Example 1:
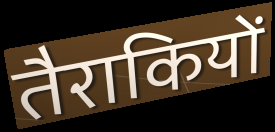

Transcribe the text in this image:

तैराकियों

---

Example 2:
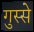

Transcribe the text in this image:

गुस्से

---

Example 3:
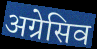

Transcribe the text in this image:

अग्रेसिव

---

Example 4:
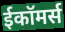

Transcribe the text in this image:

ईकॉमर्स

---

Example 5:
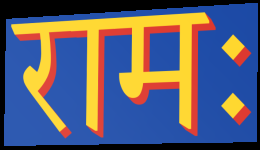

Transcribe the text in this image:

रामः